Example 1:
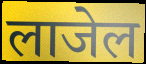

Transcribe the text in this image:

लाजेल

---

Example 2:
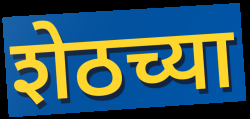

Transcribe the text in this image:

शेठच्या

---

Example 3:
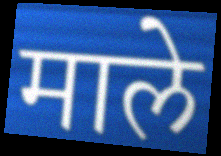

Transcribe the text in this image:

माले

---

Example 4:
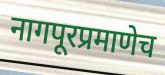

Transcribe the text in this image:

नागपूरप्रमाणेच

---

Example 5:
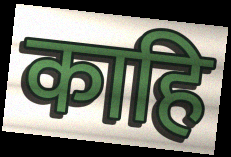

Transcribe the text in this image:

काहि